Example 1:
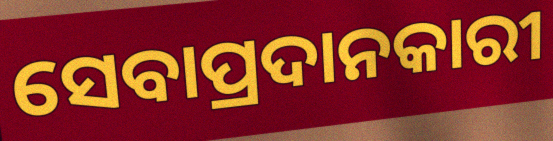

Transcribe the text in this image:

ସେବାପ୍ରଦାନକାରୀ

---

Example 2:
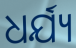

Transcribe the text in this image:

ଧର୍ଯ୍ୟ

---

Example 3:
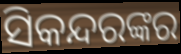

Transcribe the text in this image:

ସିକନ୍ଦରଙ୍କର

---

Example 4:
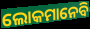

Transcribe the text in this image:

ଲୋକମାନେବି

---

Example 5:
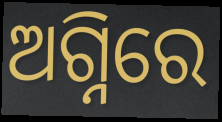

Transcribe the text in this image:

ଅଗ୍ନିରେ